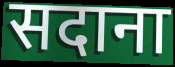
सदाना